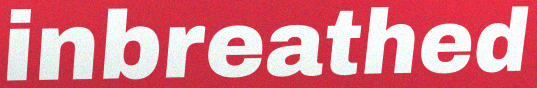
inbreathed